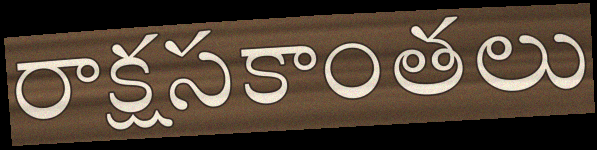
రాక్షసకాంతలు